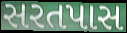
સરતપાસ